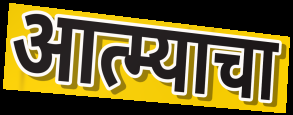
आत्म्याचा